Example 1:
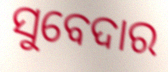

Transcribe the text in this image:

ସୁବେଦାର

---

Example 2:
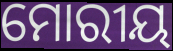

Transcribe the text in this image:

ମୋରୀୟ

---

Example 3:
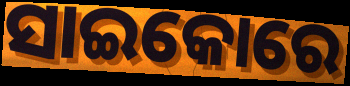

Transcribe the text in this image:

ସାଇକୋରେ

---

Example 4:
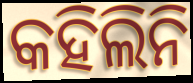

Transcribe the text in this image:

କହିଲିନି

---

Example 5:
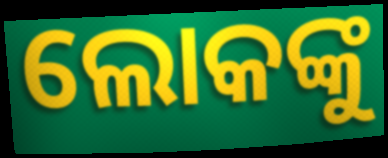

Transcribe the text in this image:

ଲୋକଙ୍କୁ